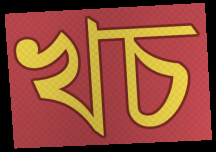
খচ